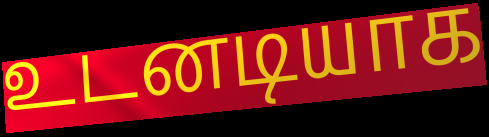
உடனடியாக